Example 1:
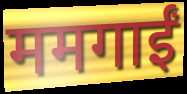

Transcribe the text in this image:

ममगाईं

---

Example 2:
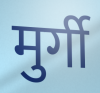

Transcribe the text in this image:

मुर्गी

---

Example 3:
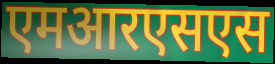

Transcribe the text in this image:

एमआरएसएस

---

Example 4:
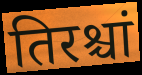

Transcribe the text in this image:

तिरश्चां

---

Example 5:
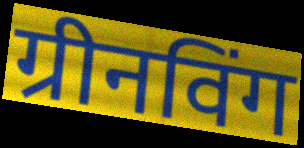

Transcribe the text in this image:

ग्रीनविंग